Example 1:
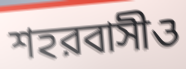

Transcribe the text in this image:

শহরবাসীও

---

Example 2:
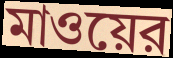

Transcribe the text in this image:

মাওয়ের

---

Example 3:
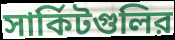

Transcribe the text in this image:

সার্কিটগুলির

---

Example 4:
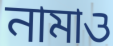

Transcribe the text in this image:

নামাও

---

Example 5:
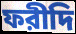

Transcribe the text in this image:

ফরীদি